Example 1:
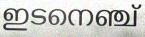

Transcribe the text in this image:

ഇടനെഞ്ച്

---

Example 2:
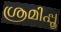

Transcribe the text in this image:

ശ്രമിപ്പൂ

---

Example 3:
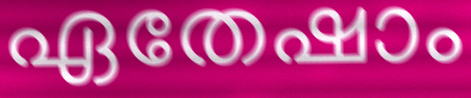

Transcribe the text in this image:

ഏതേഷാം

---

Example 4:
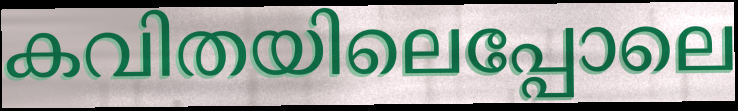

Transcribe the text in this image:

കവിതയിലെപ്പോലെ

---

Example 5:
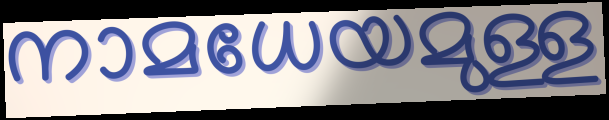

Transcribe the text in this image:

നാമധേയമുള്ള